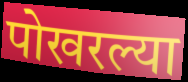
पोखरल्या